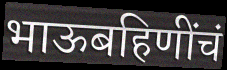
भाऊबहिणींचं